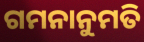
ଗମନାନୁମତି